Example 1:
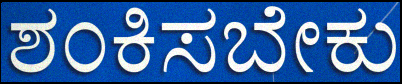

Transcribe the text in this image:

ಶಂಕಿಸಬೇಕು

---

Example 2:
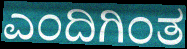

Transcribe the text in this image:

ಎಂದಿಗಿಂತ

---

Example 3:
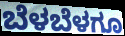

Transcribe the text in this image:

ಬೆಳಬೆಳಗೂ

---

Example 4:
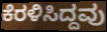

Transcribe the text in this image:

ಕೆರಳಿಸಿದ್ದವು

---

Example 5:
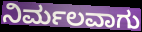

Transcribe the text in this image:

ನಿರ್ಮಲವಾಗು